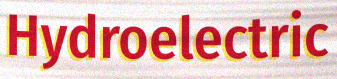
Hydroelectric